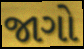
જાગો